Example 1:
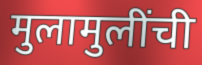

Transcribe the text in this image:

मुलामुलींची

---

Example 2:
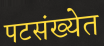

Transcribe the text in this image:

पटसंख्येत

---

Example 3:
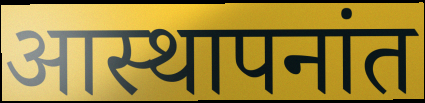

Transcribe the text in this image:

आस्थापनांत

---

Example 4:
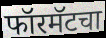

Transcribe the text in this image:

फॉरमॅटचा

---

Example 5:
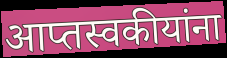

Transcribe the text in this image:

आप्तस्वकीयांना